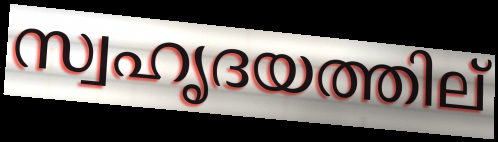
സ്വഹൃദയത്തില്